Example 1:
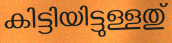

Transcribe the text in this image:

കിട്ടിയിട്ടുള്ളതു്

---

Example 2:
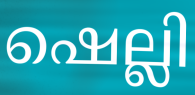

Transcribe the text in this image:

ഷെല്ലി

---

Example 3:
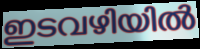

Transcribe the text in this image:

ഇടവഴിയിൽ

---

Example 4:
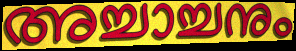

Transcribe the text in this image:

അച്ചാച്ചനും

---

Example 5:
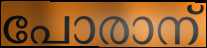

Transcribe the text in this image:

പോരാന്